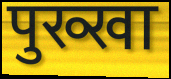
पुख्खा